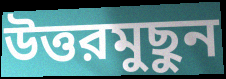
উত্তরমুছুন